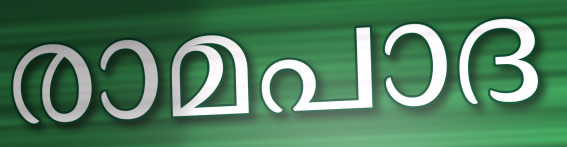
രാമപാദ